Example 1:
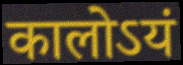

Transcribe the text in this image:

कालोऽयं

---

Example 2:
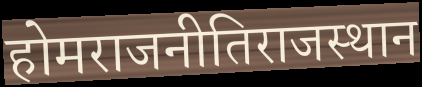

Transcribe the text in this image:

होमराजनीतिराजस्थान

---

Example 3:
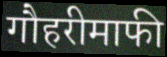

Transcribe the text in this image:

गौहरीमाफी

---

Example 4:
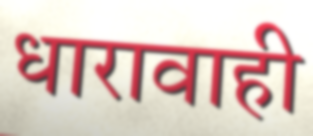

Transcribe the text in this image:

धारावाही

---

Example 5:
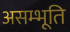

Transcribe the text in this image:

असम्भूति